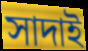
সাদাই